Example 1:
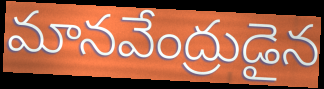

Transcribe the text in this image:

మానవేంద్రుడైన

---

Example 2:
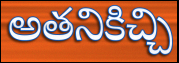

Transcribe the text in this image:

అతనికిచ్చి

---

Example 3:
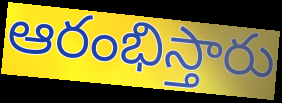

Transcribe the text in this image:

ఆరంభిస్తారు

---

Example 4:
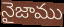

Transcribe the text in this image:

నైజాము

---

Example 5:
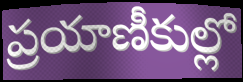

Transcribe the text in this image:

ప్రయాణీకుల్లో